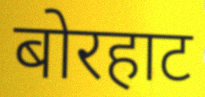
बोरहाट